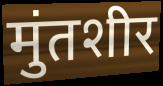
मुंतशीर